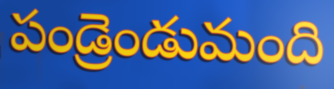
పండ్రెండుమంది